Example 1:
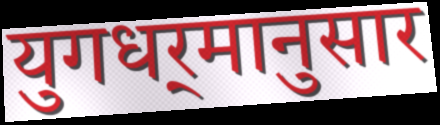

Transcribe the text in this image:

युगधर्मानुसार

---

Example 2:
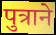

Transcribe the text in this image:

पुत्राने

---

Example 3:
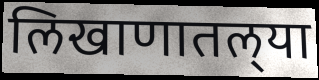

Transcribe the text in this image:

लिखाणातल्या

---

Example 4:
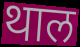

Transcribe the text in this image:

थाल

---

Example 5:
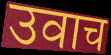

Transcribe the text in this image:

उवाच